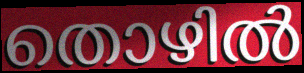
തൊഴിൽ